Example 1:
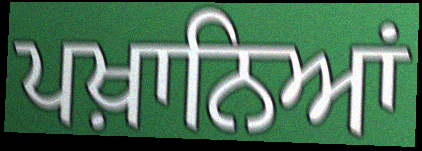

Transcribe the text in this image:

ਪਖ਼ਾਨਿਆਂ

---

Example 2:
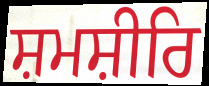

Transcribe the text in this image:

ਸ਼ਮਸ਼ੀਰਿ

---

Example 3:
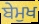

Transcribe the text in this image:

ਬੇਮੁਖ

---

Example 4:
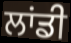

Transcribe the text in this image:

ਲਾਂਡੀ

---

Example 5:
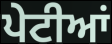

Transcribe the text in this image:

ਪੇਟੀਆਂ